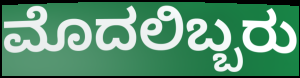
ಮೊದಲಿಬ್ಬರು